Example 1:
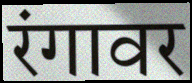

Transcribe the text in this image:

रंगावर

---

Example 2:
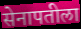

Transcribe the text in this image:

सेनापतीला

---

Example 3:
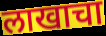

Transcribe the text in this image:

लाखाचा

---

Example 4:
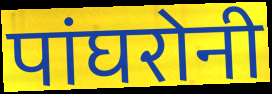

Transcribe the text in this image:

पांघरोनी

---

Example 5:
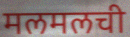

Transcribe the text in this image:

मलमलची